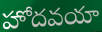
హోదవయా